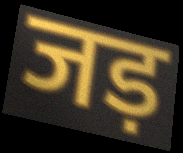
जड़